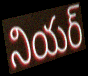
నియర్